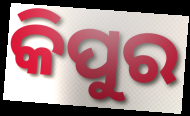
କିପୁର